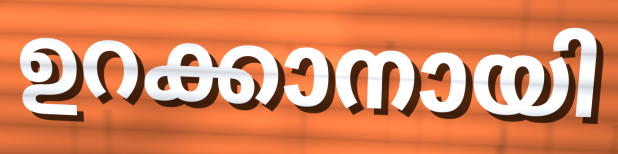
ഉറക്കാനായി